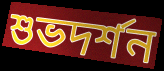
শুভদর্শন